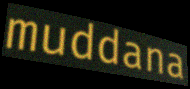
muddana